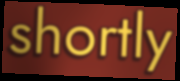
shortly